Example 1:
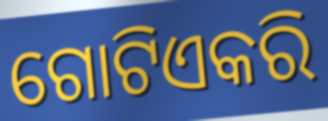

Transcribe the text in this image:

ଗୋଟିଏକରି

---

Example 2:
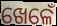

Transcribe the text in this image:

ଖେଳେଁ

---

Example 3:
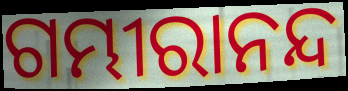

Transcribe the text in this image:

ଗମ୍ଭୀରାନନ୍ଦ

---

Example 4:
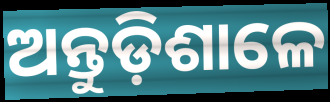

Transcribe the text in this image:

ଅନ୍ତୁଡ଼ିଶାଳେ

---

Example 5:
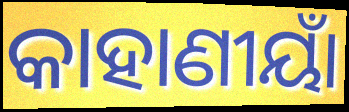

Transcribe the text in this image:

କାହାଣୀୟାଁ